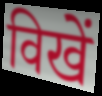
विखें